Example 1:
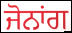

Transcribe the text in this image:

ਜੋਨਾਂਗ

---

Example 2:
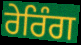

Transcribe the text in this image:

ਰੇਰਿੰਗ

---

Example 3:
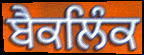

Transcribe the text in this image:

ਬੈਕਲਿੰਕ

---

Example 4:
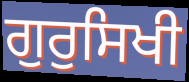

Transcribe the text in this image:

ਗੁਰੁਸਿਖੀ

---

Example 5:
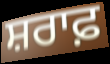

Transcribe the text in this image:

ਸ਼ਰਾਫ਼